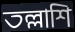
তল্লাশি